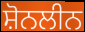
ਸ਼ੋਨਲੀਨ